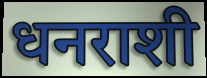
धनराशी